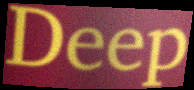
Deep